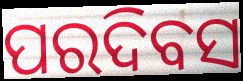
ପରଦିବସ